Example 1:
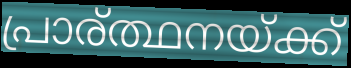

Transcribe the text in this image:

പ്രാര്ത്ഥനയ്ക്ക്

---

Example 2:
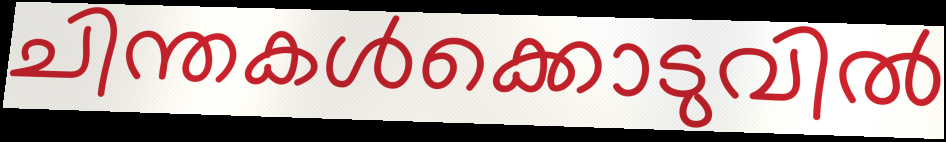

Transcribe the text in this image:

ചിന്തകൾക്കൊടുവിൽ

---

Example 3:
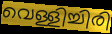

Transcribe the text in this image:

വെള്ളിച്ചിരി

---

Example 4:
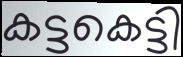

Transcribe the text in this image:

കട്ടകെട്ടി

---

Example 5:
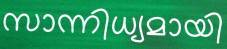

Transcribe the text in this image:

സാന്നിധ്യമായി